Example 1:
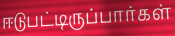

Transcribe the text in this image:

ஈடுபட்டிருப்பார்கள்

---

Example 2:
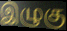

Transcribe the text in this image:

இழுகு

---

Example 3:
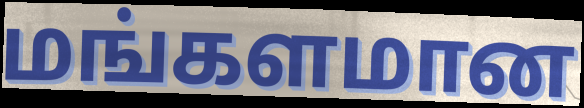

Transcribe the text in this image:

மங்களமான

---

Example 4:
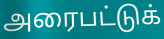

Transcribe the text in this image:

அரைபட்டுக்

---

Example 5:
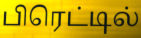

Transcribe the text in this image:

பிரெட்டில்